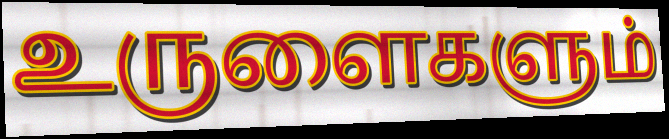
உருளைகளும்